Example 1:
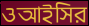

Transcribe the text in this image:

ওআইসির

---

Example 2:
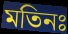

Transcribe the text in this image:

মতিনঃ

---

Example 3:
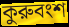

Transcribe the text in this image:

কুরুবংশ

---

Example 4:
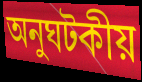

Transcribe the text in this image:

অনুঘটকীয়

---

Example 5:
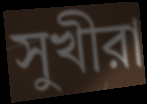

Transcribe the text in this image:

সুখীরা